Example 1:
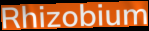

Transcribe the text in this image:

Rhizobium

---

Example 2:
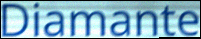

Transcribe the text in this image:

Diamante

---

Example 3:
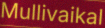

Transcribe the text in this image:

Mullivaikal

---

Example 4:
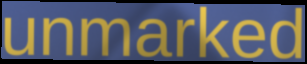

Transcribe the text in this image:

unmarked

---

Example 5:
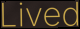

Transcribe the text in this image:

Lived